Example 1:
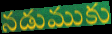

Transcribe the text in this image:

నడుముకు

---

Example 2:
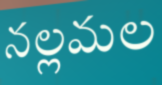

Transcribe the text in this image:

నల్లమల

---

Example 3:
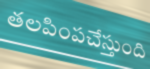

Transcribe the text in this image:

తలపింపచేస్తుంది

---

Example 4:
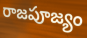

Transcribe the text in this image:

రాజపూజ్యం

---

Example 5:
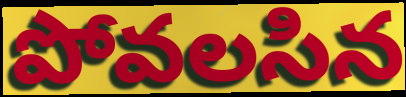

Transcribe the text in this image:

పోవలసిన